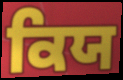
ਕਿਯ